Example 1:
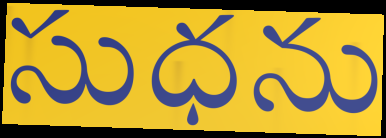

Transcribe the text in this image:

సుధను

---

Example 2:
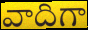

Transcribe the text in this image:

వాదిగా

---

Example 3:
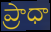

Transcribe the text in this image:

ప్రాధా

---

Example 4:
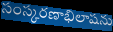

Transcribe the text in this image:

సంస్కరణాభిలాషను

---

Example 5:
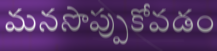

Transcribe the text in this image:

మనసొప్పుకోవడం